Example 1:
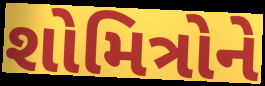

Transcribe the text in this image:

શોમિત્રોને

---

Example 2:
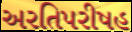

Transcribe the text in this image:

અરતિપરીષહ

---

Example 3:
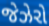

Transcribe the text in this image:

જેઝેરો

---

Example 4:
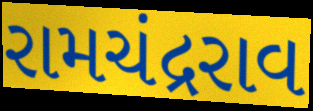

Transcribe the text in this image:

રામચંદ્રરાવ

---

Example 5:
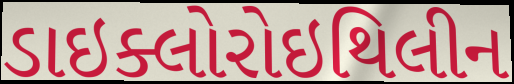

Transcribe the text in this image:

ડાઇક્લોરોઇથિલીન